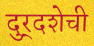
दुर्दशेची